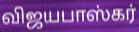
விஜயபாஸ்கர்